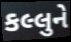
કલ્લુને